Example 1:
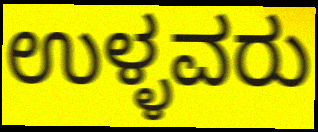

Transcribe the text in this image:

ಉಳ್ಳವರು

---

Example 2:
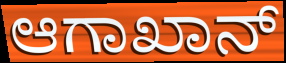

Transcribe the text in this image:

ಆಗಾಖಾನ್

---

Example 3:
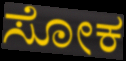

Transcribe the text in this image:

ಸೋಕ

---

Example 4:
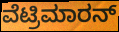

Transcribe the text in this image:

ವೆಟ್ರಿಮಾರನ್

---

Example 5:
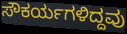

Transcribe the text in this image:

ಸೌಕರ್ಯಗಳಿದ್ದವು